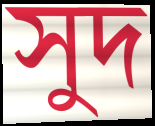
সুদ